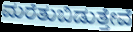
ಮರೆತುಬಿಡುತ್ತೇವೆ